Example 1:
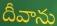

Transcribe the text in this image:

దీవాను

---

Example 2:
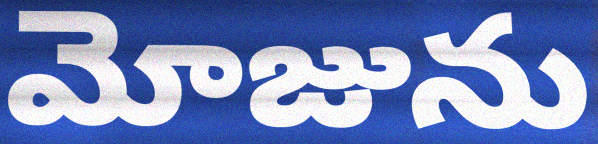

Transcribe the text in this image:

మోజును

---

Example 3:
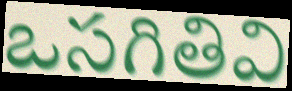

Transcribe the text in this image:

ఒసగితివి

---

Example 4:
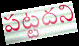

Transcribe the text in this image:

పట్టదని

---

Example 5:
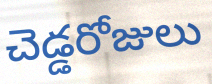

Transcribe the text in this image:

చెడ్డరోజులు